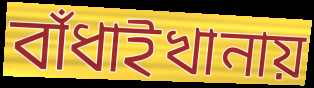
বাঁধাইখানায়